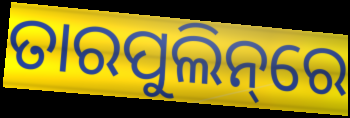
ତାରପୁଲିନ୍‌ରେ